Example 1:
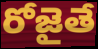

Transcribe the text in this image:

రోజైతే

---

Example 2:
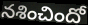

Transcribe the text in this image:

నశించిందో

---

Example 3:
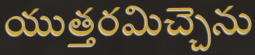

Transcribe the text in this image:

యుత్తరమిచ్చెను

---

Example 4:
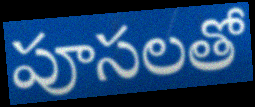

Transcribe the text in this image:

పూసలతో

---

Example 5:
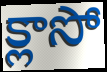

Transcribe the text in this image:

క్లాసో